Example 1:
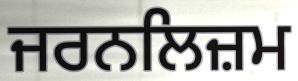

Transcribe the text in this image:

ਜਰਨਲਿਜ਼ਮ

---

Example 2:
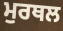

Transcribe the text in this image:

ਮੁਰਥਲ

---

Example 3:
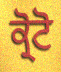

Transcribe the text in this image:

ਕ੍ਰੋਟੋ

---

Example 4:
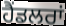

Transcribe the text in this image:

ਹੈਂਡਲਰਾਂ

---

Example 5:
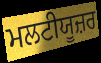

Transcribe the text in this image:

ਮਲਟੀਯੂਜ਼ਰ